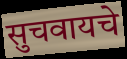
सुचवायचे